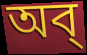
অব্